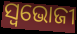
ସ୍ଵଭୋଜୀ